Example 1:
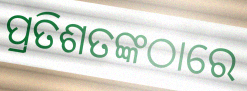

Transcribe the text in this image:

ପ୍ରତିଶତଙ୍କଠାରେ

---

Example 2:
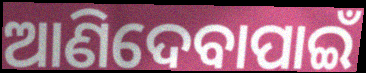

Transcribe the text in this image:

ଆଣିଦେବାପାଇଁ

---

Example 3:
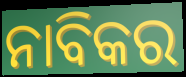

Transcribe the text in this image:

ନାବିକର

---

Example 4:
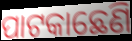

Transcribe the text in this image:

ପାଟକାଛେଣି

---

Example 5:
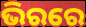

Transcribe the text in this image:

ଭିରରେ